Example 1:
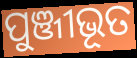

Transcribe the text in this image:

ପୁଞ୍ଜୀଭୂତ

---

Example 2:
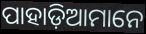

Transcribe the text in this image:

ପାହାଡ଼ିଆମାନେ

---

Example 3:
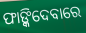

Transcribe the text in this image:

ଫାଙ୍କିଦେବାରେ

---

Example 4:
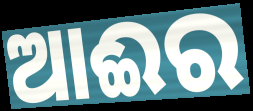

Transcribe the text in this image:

ଆଈର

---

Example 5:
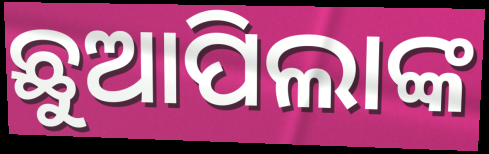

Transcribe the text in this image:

ଛୁଆପିଲାଙ୍କ